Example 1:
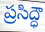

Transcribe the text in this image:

ప్రసిద్ధౌ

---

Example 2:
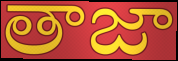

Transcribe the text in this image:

తాజా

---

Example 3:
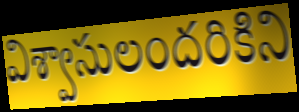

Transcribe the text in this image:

విశ్వాసులందరికిని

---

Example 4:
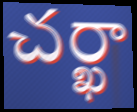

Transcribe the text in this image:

చర్ఖా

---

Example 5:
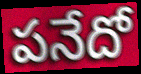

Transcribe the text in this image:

పనేదో